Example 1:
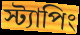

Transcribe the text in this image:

স্ট্যাপিং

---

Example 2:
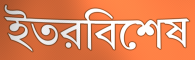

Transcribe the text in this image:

ইতরবিশেষ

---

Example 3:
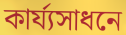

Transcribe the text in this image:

কার্য্যসাধনে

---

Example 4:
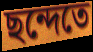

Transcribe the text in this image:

ছন্দেতে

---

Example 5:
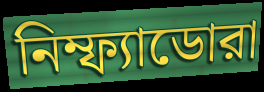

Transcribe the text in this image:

নিম্ফ্যাডোরা